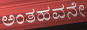
ಅಂತಹವನೇ